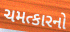
ચમત્કારનો